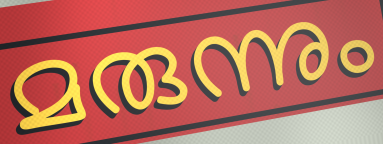
മരുന്നും